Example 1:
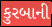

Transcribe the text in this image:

કુરબાની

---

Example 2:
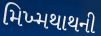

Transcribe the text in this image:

મિખ્મથાથની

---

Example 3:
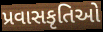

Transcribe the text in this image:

પ્રવાસકૃતિઓ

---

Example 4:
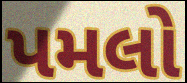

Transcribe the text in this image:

પમલો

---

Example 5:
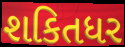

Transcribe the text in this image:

શકિતધર